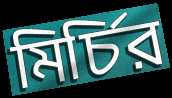
মির্চির